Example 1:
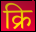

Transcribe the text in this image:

क्रि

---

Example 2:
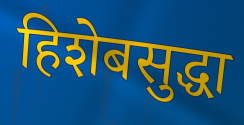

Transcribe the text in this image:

हिशेबसुद्धा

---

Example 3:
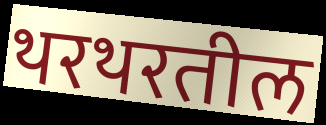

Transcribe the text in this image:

थरथरतील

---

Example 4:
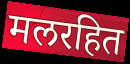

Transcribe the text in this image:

मलरहित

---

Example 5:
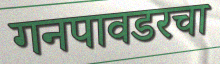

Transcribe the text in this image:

गनपावडरचा